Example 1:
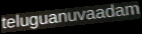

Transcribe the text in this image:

teluguanuvaadam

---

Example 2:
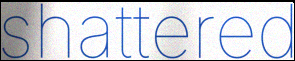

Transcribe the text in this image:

shattered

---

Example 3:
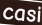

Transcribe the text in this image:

casi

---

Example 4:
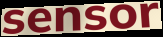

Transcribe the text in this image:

sensor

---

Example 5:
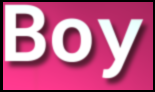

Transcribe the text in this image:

Boy